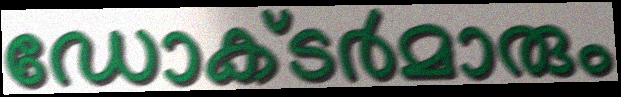
ഡോക്ടർമാരും